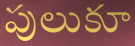
పులుకూ